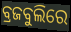
ବ୍ରଜବୁଲିରେ